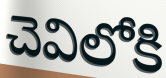
చెవిలోకి